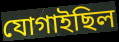
যোগাইছিল